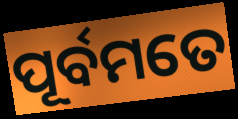
ପୂର୍ବମତେ